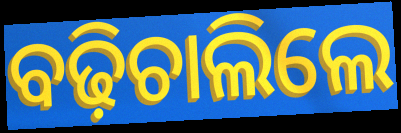
ବଢ଼ିଚାଲିଲେ